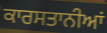
ਕਾਰਸਤਾਨੀਆਂ